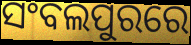
ସଂବଲପୁରରେ